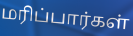
மரிப்பார்கள்